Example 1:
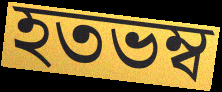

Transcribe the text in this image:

হতভম্ব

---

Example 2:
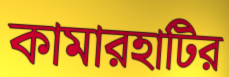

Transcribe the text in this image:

কামারহাটির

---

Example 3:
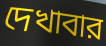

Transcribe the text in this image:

দেখাবার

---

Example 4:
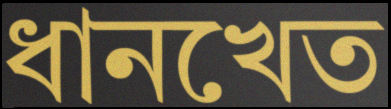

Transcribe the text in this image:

ধানখেত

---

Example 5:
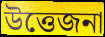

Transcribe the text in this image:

উত্তেজনা